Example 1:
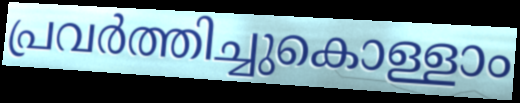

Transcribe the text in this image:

പ്രവർത്തിച്ചുകൊള്ളാം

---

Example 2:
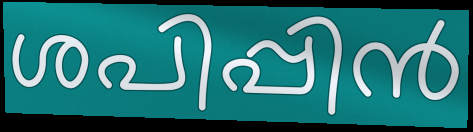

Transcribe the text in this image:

ശപിപ്പിൻ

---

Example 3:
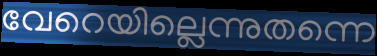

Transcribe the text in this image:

വേറെയില്ലെന്നുതന്നെ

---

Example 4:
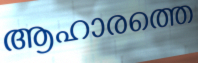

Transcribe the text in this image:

ആഹാരത്തെ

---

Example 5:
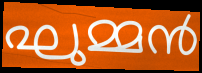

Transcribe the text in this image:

ഘുമ്മൻ